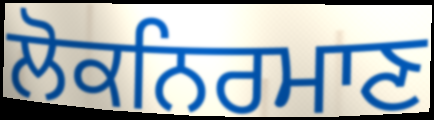
ਲੋਕਨਿਰਮਾਣ